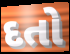
દતો